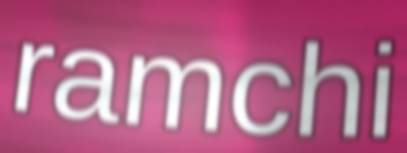
ramchi